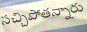
సచ్చిపోతన్నారు